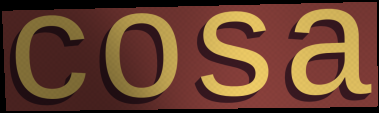
cosa